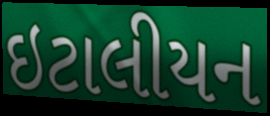
ઇટાલીયન